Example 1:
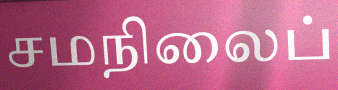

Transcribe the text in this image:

சமநிலைப்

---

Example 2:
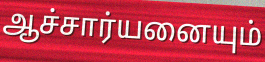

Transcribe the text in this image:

ஆச்சார்யனையும்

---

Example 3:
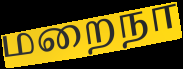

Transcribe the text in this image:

மறைநா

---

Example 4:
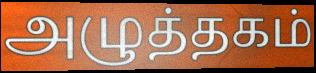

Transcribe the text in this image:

அழுத்தகம்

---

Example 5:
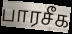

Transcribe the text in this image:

பாரசீக